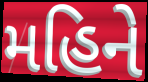
મહિને